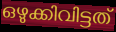
ഒഴുക്കിവിട്ടത്